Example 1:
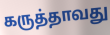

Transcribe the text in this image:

கருத்தாவது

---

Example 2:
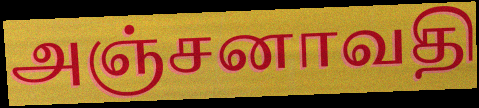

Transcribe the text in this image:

அஞ்சனாவதி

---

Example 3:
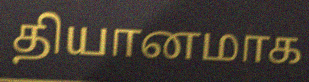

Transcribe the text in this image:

தியானமாக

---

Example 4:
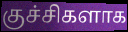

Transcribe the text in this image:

குச்சிகளாக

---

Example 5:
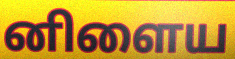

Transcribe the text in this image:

னிளைய